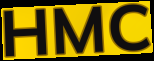
HMC